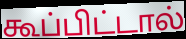
கூப்பிட்டால்